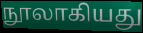
நூலாகியது